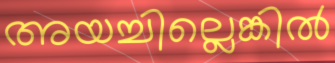
അയച്ചില്ലെങ്കിൽ